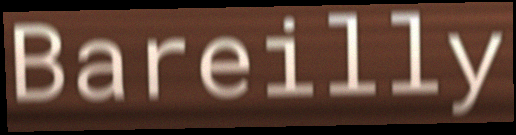
Bareilly